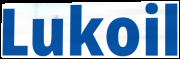
Lukoil